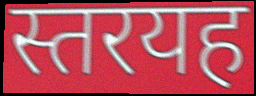
स्तरयह